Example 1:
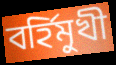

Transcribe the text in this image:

বৰ্হিমুখী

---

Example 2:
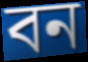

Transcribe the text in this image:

বন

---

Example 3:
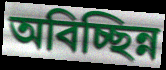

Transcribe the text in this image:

অবিচ্ছিন্ন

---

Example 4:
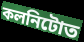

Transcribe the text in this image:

কলনিটোত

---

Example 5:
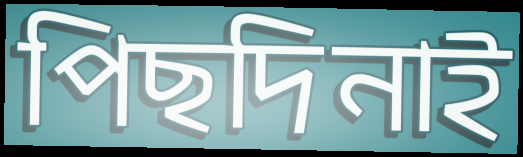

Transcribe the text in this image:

পিছদিনাই